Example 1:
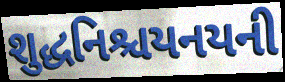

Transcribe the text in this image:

શુદ્ધનિશ્ચયનયની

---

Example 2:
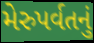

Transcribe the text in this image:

મેરુપર્વતનું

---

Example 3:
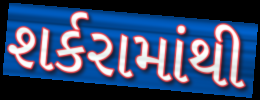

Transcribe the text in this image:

શર્કરામાંથી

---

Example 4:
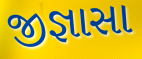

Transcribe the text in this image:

જીજ્ઞાસા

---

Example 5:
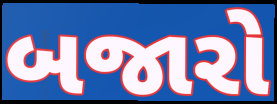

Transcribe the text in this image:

બજારો